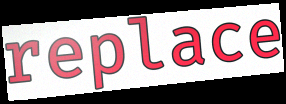
replace